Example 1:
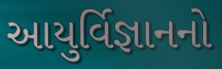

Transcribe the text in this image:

આયુર્વિજ્ઞાનનો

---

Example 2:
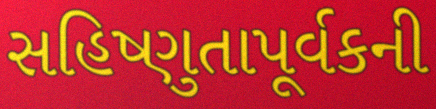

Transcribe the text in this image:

સહિષ્ણુતાપૂર્વકની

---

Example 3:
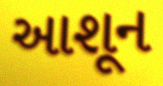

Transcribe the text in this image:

આશૂન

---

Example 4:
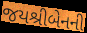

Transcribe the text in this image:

જયશ્રીબેનની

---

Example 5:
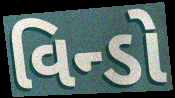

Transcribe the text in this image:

વિન્ડો